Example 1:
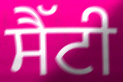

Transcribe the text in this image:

ਸੈੱਟੀ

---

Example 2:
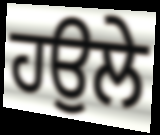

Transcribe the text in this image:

ਹਉਲੇ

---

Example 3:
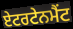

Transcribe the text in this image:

ਏਟਰਟੇਨਮੈਂਟ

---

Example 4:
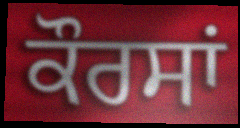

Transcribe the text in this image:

ਕੌਰਸਾਂ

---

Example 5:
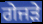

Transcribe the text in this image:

ਗੇਜੜੇ